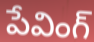
పేవింగ్